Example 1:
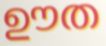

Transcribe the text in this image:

ഊത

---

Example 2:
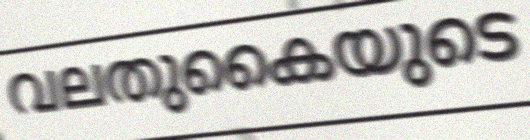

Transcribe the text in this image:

വലതുകൈയുടെ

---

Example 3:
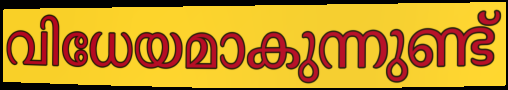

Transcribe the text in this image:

വിധേയമാകുന്നുണ്ട്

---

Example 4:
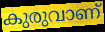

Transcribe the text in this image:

കുരുവാണ്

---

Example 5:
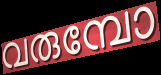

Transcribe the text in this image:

വരുമ്പോ